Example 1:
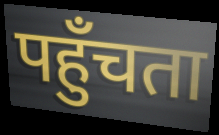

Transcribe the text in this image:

पहुँचता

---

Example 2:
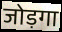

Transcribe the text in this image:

जोड़गा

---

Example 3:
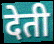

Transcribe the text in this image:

देती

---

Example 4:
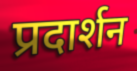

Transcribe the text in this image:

प्रदार्शन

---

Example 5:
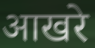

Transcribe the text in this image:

आखरे